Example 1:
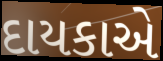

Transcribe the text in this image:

દાયકાએ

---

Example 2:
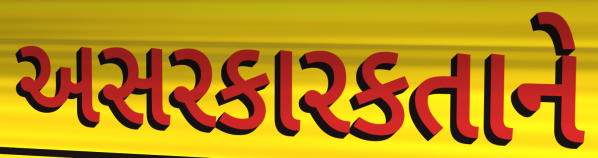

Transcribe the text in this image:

અસરકારકતાને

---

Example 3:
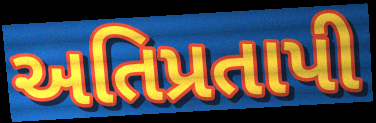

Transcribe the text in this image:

અતિપ્રતાપી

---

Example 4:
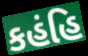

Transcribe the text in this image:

કહંહિ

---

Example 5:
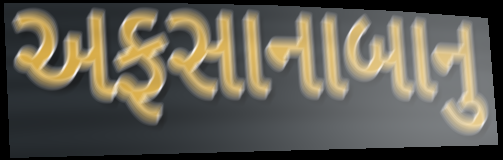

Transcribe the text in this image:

અફસાનાબાનુ